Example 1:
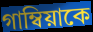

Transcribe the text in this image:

গাম্বিয়াকে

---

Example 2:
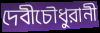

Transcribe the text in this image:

দেবীচৌধুরানী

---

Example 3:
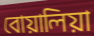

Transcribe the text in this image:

বোয়ালিয়া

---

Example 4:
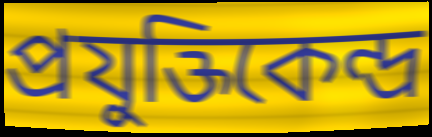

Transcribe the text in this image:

প্রযুক্তিকেন্দ্র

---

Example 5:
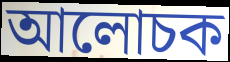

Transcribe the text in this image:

আলোচক